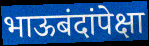
भाऊबंदांपेक्षा